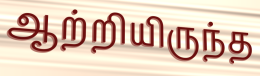
ஆற்றியிருந்த